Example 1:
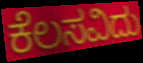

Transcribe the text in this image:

ಕೆಲಸವಿದು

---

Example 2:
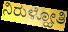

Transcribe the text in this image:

ನಿರುಳ್ಹೋತಿ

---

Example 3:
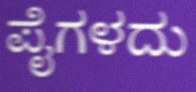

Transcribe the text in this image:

ಪೈಗಳದು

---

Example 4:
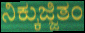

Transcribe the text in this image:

ನಿಕ್ಕುಜ್ಜಿತಂ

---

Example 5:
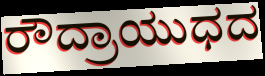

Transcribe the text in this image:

ರೌದ್ರಾಯುಧದ